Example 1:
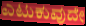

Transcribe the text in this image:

ಎಟುಕುವುದೇ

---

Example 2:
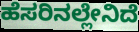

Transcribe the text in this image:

ಹೆಸರಿನಲ್ಲೇನಿದೆ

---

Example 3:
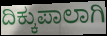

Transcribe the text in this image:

ದಿಕ್ಕುಪಾಲಾಗಿ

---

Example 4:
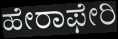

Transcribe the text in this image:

ಹೇರಾಫೇರಿ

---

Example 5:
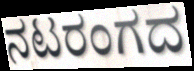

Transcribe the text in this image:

ನಟರಂಗದ